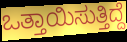
ಒತ್ತಾಯಿಸುತ್ತಿದ್ದೆ